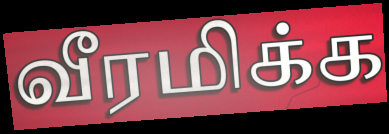
வீரமிக்க